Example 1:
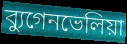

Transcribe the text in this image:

ব্যুগেনভেলিয়া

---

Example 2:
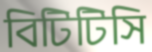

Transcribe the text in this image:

বিটিটিসি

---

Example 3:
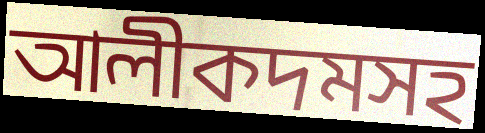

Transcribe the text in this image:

আলীকদমসহ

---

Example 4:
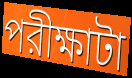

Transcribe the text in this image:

পরীক্ষাটা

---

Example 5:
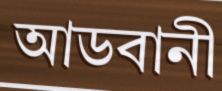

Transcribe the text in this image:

আডবানী